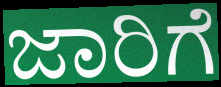
ಜಾರಿಗೆ